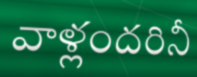
వాళ్లందరినీ